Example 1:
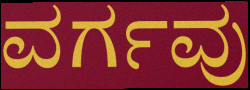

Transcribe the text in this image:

ವರ್ಗವು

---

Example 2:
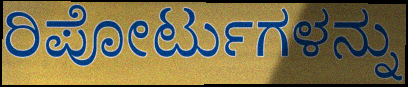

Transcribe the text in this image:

ರಿಪೋರ್ಟುಗಳನ್ನು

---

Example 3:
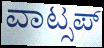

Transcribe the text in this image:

ವಾಟ್ಸಪ್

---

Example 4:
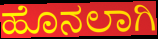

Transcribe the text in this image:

ಹೊನಲಾಗಿ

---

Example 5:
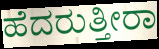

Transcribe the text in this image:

ಹೆದರುತ್ತೀರಾ